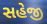
સહેજી